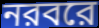
নরবরে